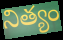
నిత్యం